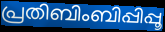
പ്രതിബിംബിപ്പിപ്പൂ